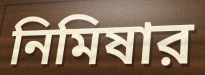
নিমিষার